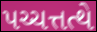
પચ્ચત્તત્થે